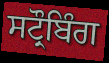
ਸਟ੍ਰੌਬਿੰਗ